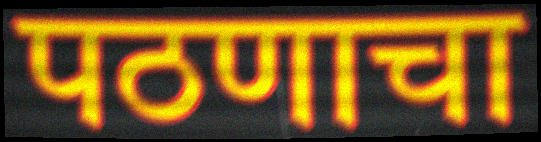
पठणाचा